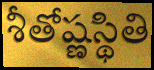
శీతోష్ణస్థితి